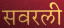
सवरली